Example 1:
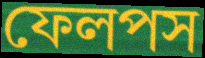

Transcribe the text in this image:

ফেলপস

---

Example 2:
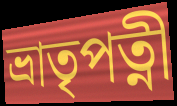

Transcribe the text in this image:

ভ্রাতৃপত্নী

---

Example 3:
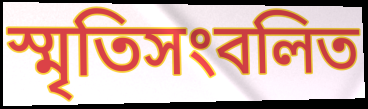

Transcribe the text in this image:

স্মৃতিসংবলিত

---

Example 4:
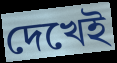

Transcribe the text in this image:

দেখেই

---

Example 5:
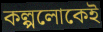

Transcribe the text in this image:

কল্পলোকেই